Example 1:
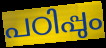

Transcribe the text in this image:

പഠിപ്പും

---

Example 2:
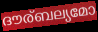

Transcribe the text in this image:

ദൗര്ബല്യമോ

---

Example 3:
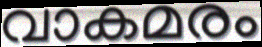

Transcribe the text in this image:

വാകമരം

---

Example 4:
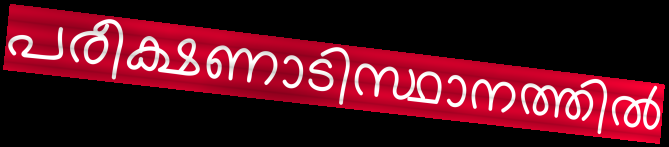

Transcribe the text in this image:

പരീക്ഷണാടിസ്ഥാനത്തിൽ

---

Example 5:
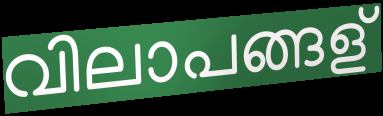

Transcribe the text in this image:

വിലാപങ്ങള്